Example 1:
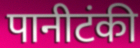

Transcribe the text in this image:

पानीटंकी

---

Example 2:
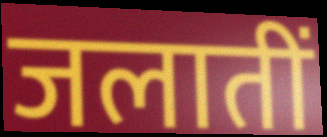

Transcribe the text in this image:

जलातीं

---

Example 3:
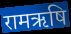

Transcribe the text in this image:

रामऋषि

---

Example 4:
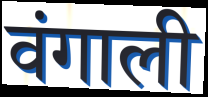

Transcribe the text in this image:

वंगाली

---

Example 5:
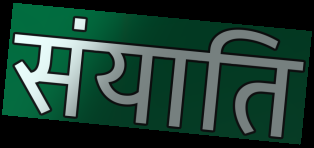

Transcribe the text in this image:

संयाति